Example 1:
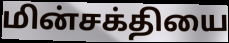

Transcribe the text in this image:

மின்சக்தியை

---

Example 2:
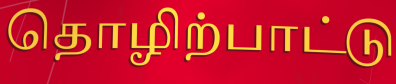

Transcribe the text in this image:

தொழிற்பாட்டு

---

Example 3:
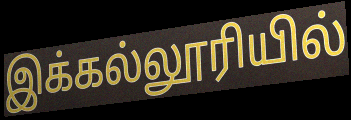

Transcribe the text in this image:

இக்கல்லூரியில்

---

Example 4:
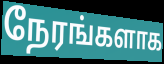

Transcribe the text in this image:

நேரங்களாக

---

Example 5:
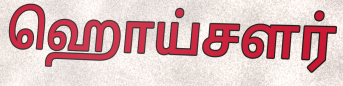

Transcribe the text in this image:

ஹொய்சளர்